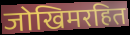
जोखिमरहित